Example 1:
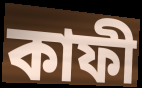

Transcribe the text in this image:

কাফী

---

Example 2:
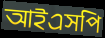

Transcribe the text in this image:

আইএসপি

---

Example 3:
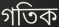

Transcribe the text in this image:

গতিক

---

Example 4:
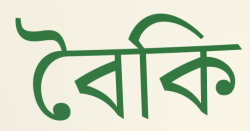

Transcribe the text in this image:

বৈকি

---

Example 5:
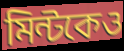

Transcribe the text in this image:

মিন্টকেও